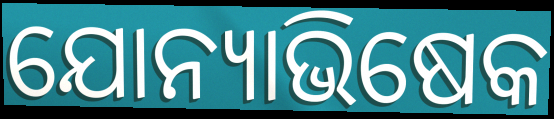
ଯୋନ୍ୟାଭିଷେକ